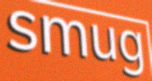
smug